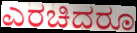
ಎರಚಿದರೂ